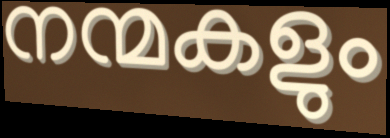
നന്മകളും